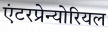
एंटरप्रेन्योरियल